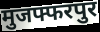
मुजफ्फरपुर